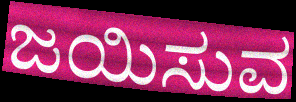
ಜಯಿಸುವ